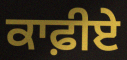
ਕਾਫ਼ੀਏ